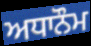
ਅਧਾਨੌਮ